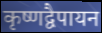
कृष्णद्वैपायन